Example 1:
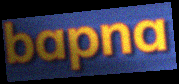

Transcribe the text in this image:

bapna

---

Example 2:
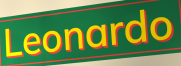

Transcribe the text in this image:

Leonardo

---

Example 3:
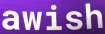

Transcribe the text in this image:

awish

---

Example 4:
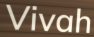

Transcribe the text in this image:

Vivah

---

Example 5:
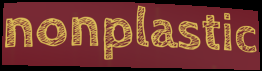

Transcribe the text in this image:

nonplastic